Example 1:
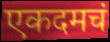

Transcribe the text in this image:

एकदमचं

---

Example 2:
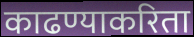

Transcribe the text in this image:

काढण्याकरिता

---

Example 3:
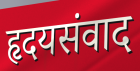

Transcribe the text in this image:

हृदयसंवाद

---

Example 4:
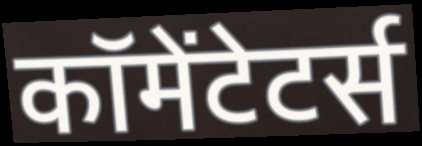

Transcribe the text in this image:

कॉमेंटेटर्स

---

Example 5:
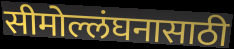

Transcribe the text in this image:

सीमोल्लंघनासाठी